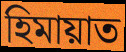
হিমায়াত